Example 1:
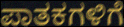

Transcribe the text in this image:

ಪಾತಕಗಳಿಗೆ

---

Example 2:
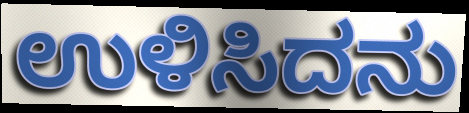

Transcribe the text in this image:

ಉಳಿಸಿದನು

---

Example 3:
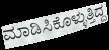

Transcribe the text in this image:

ಮಾಡಿಸಿಕೊಳ್ಳುತ್ತಿದ್ದ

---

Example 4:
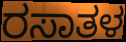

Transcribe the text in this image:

ರಸಾತಳ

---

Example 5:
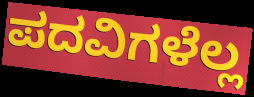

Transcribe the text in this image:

ಪದವಿಗಳೆಲ್ಲ